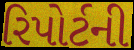
રિપોર્ટની